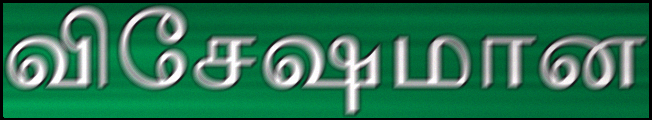
விசேஷமான